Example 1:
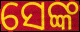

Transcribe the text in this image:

ସେଙ୍କ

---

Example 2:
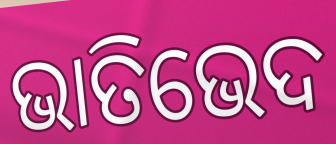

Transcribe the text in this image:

ଭାତିଭେଦ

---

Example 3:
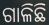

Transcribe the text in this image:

ଗାଳିଛି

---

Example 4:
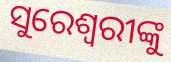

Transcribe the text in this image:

ସୁରେଶ୍ୱରୀଙ୍କୁ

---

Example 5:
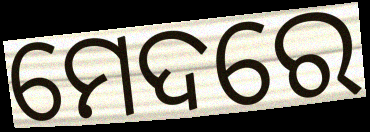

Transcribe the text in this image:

ମେଦରେ